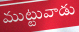
ముట్టువాడు